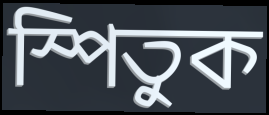
স্পিতুক